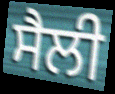
ਸੈਲੀ